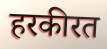
हरकीरत